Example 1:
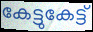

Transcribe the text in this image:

കേട്ടുകേട്ട്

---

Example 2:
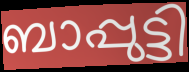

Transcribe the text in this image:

ബാപ്പുട്ടി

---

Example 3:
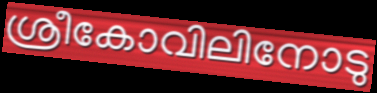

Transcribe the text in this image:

ശ്രീകോവിലിനോടു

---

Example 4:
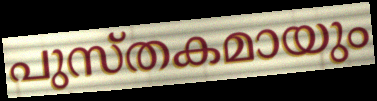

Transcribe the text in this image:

പുസ്തകമായും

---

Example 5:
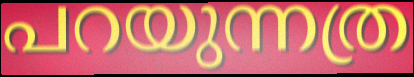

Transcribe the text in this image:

പറയുന്നത്ര